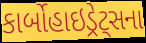
કાર્બોહાઇડ્રેટ્સના